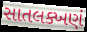
સાતલક્ખણં